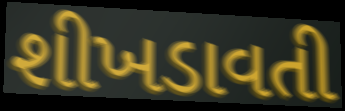
શીખડાવતી